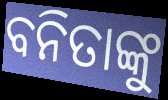
ବନିତାଙ୍କୁ